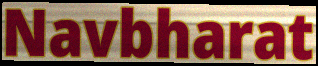
Navbharat